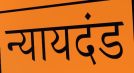
न्यायदंड